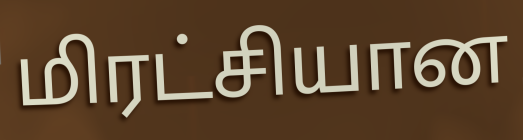
மிரட்சியான